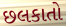
છલકાતો